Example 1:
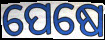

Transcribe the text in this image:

ପେଷେ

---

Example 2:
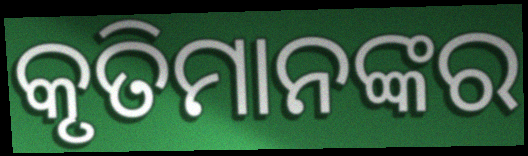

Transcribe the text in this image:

କୃତିମାନଙ୍କର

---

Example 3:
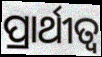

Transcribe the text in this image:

ପ୍ରାର୍ଥୀତ୍ଵ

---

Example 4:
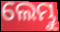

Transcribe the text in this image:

ଲେମ୍ଭୁ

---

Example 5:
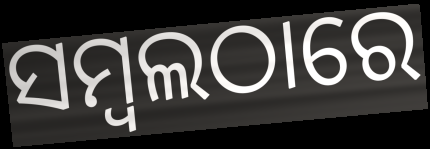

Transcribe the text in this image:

ସମ୍ବଲଠାରେ